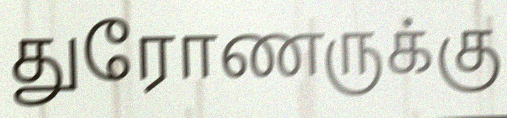
துரோணருக்கு